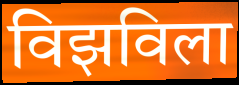
विझविला